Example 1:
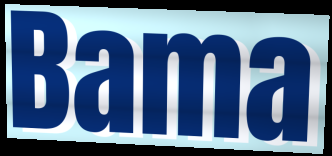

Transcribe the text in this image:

Bama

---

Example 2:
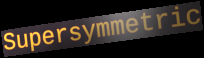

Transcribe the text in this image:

Supersymmetric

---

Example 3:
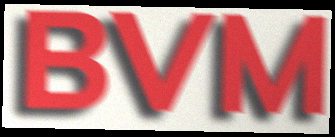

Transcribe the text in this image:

BVM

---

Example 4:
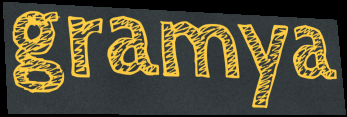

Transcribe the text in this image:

gramya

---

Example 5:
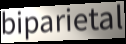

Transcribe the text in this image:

biparietal